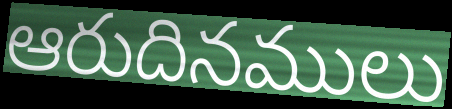
ఆరుదినములు